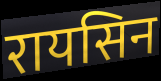
रायसिन